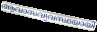
ആവാസവ്യവസ്ഥയായി